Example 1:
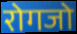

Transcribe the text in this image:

रोगजो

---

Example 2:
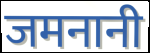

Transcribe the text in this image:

जमनानी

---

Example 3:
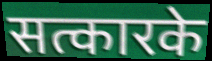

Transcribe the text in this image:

सत्कारके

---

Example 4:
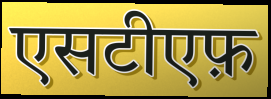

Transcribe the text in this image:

एसटीएफ़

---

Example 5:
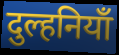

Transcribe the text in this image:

दुल्हनियाँ